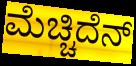
ಮೆಚ್ಚಿದೆನ್